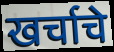
खर्चाचे